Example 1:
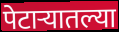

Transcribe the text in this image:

पेटाऱ्यातल्या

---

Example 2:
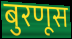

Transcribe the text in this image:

बुरणूस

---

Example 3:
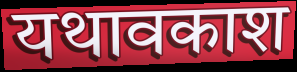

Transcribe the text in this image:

यथावकाश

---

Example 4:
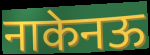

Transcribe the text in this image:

नाकेनऊ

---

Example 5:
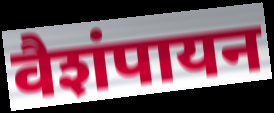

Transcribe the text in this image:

वैशंपायन